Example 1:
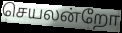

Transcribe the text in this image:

செயலன்றோ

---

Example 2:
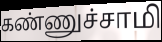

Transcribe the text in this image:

கண்ணுச்சாமி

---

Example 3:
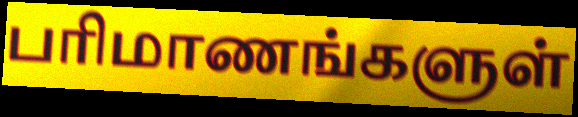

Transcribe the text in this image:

பரிமாணங்களுள்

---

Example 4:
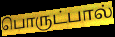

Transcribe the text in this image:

பொருட்பால்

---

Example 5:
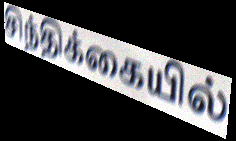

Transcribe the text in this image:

சிந்திக்கையில்